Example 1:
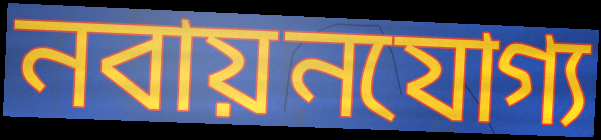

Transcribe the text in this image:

নবায়নযোগ্য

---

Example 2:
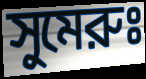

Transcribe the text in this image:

সুমেরুঃ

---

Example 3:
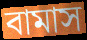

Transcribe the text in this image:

বামাস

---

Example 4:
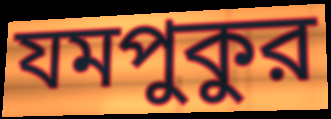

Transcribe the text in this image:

যমপুকুর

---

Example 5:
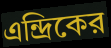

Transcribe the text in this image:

এন্দ্রিকের